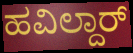
ಹವಿಲ್ದಾರ್